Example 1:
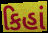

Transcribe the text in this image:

કિહાં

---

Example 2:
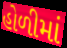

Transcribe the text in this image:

હોળીમાં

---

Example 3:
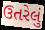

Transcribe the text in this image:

ઉતરેલું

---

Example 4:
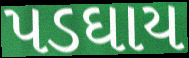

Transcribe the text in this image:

પડઘાય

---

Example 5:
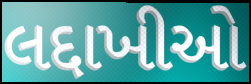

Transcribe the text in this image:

લદ્દાખીઓ